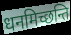
धनमिच्छन्ति